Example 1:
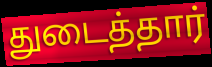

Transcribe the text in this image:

துடைத்தார்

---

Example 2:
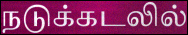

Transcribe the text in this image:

நடுக்கடலில்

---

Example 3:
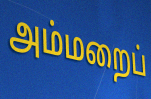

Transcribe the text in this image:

அம்மறைப்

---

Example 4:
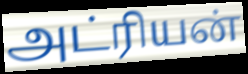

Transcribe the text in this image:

அட்ரியன்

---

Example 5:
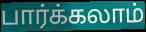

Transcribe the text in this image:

பார்க்கலாம்